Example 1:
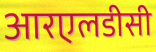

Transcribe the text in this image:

आरएलडीसी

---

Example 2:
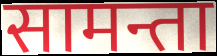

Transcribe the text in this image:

सामन्ता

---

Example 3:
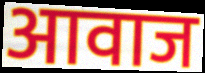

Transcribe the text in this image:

आवाज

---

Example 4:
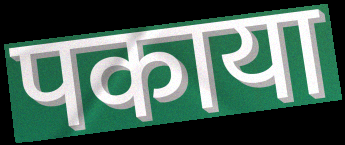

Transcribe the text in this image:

पकाया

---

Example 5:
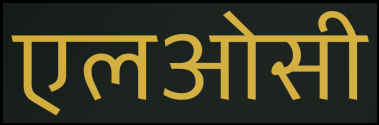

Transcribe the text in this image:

एलओसी